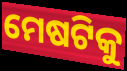
ମେଷଟିକୁ